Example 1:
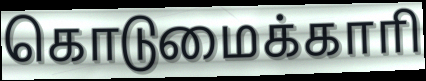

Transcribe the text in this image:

கொடுமைக்காரி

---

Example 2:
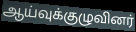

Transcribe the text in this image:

ஆய்வுக்குழுவினர்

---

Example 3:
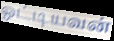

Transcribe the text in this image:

ஓட்டியவன்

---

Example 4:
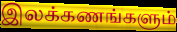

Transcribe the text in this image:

இலக்கணங்களும்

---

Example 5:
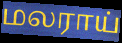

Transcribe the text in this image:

மலராய்